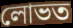
লোভত